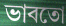
ভাবতো